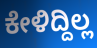
ಕೇಳಿದ್ದಿಲ್ಲ